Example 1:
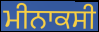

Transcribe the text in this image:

ਮੀਨਾਕਸੀ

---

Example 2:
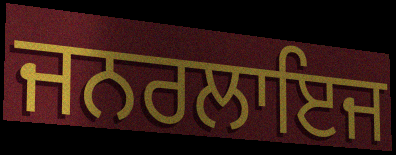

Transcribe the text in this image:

ਜਨਰਲਾਇਜ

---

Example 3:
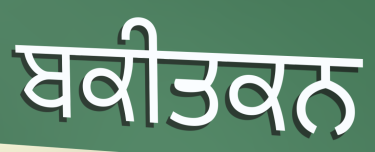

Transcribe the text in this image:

ਬਕੀਤਕਨ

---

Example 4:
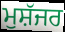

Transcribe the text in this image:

ਮੁਸ਼ੱਜਰ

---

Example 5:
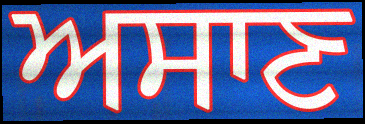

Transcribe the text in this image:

ਅਸਾਣ